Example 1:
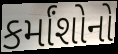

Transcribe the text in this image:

કર્માંશોનો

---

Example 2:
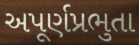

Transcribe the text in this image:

અપૂર્ણપ્રભુતા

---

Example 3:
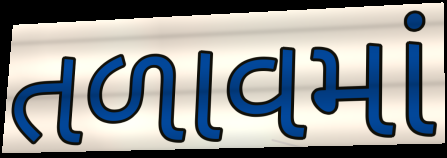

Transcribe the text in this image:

તળાવમાં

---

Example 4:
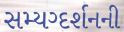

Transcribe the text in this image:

સમ્યગ્દર્શનની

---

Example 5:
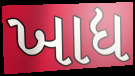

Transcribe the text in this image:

ખાદ્ય